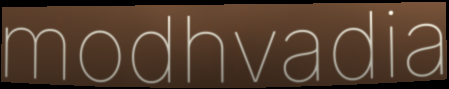
modhvadia